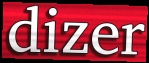
dizer